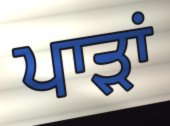
ਪਾੜਾਂ